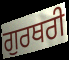
ਗੁਰਥਰੀ